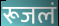
रूजलं